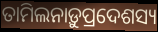
ତାମିଲନାଡ଼ୁପ୍ରଦେଶସ୍ୟ